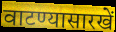
वाटण्यासारखें